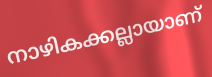
നാഴികക്കല്ലായാണ്